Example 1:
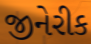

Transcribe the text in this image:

જીનેરીક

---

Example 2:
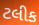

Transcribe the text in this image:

ટલીક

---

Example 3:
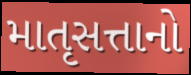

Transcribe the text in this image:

માતૃસત્તાનો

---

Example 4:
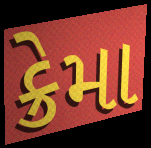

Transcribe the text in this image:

ક્રેમા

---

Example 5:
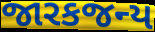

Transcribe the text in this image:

જારકજન્ય